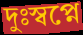
দুঃস্বপ্নে